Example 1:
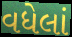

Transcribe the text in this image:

વધેલાં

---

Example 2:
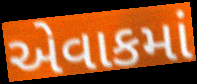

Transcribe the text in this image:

એવાકમાં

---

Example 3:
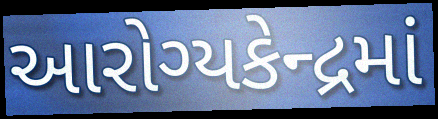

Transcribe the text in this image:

આરોગ્યકેન્દ્રમાં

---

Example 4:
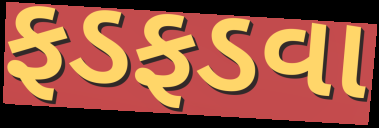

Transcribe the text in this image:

ફડફડવા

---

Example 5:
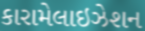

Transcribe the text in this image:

કારામેલાઇઝેશન